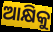
ଆକ୍ଷିକୁ